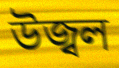
উজ্বল